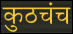
कुठचंच